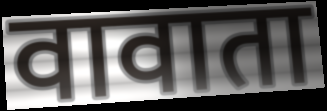
वावाता